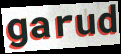
garud